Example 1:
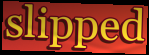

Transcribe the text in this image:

slipped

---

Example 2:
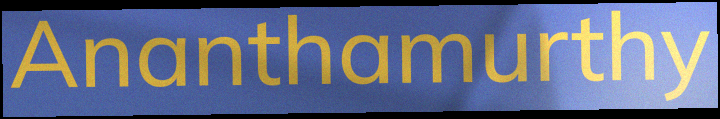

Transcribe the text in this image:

Ananthamurthy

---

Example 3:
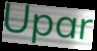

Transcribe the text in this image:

Upar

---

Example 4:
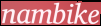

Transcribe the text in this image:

nambike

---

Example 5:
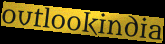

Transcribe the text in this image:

outlookindia